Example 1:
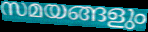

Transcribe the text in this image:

സമയങ്ങളും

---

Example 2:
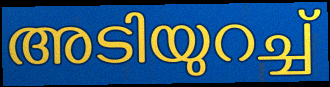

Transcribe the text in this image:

അടിയുറച്ച്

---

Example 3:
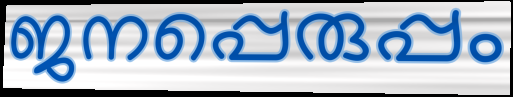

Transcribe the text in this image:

ജനപ്പെരുപ്പം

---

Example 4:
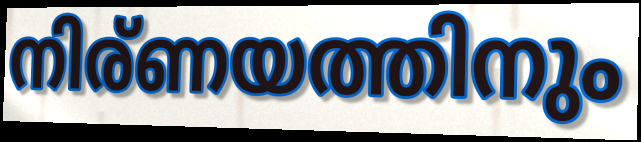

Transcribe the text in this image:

നിര്ണയത്തിനും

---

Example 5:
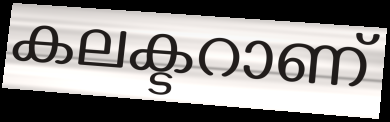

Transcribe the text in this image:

കലക്ടറാണ്